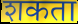
शकता